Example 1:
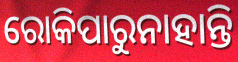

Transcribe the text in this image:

ରୋକିପାରୁନାହାନ୍ତି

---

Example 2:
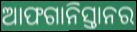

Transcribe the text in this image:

ଆଫଗାନିସ୍ତାନର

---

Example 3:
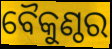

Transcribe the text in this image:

ବୈକୁଣ୍ଠର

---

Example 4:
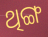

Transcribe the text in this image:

ଥିଙ୍ଗ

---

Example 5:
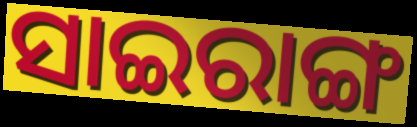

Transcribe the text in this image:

ସାଇରାଙ୍ଗ